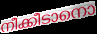
നീക്കീടാനൊ